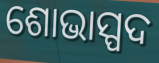
ଶୋଭାସ୍ପଦ